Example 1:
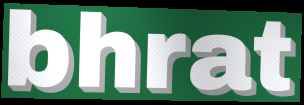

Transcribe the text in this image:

bhrat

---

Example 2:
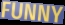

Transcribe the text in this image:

FUNNY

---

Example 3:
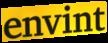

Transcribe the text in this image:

envint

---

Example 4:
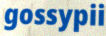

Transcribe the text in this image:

gossypii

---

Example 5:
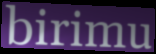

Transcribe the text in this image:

birimu